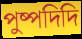
পুষ্পদিদি